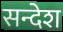
सन्देश